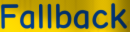
Fallback